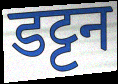
डट्टन